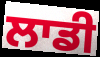
ਲਾਡੀ